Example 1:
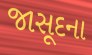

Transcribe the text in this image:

જાસૂદના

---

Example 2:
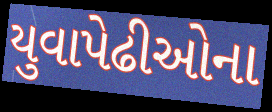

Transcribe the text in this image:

યુવાપેઢીઓના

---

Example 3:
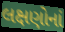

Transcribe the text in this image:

લક્ષણોનાં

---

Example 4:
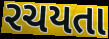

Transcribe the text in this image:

રચયતા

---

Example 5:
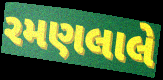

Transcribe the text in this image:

રમણલાલે